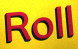
Roll